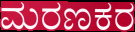
ಮರಣಕರ